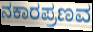
ನಕಾರಪ್ರಣವ